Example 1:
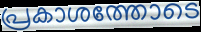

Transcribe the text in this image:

പ്രകാശത്തോടെ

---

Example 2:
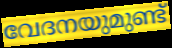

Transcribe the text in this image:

വേദനയുമുണ്ട്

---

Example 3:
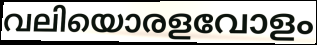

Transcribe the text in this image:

വലിയൊരളവോളം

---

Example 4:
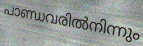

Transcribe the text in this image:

പാണ്ഡവരിൽനിന്നും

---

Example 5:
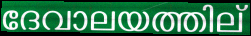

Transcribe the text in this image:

ദേവാലയത്തില്